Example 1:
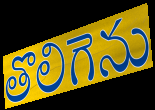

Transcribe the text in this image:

తొలిగెను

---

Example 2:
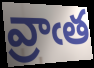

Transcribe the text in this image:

వ్రాఁత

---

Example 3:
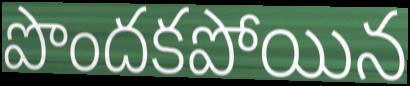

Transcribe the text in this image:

పొందకపోయిన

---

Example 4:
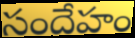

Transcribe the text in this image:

సందేహం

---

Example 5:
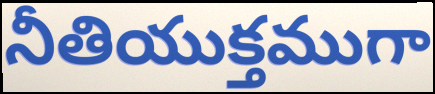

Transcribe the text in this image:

నీతియుక్తముగా